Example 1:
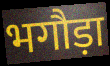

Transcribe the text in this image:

भगौड़ा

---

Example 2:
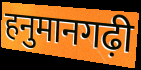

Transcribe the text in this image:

हनुमानगढ़ी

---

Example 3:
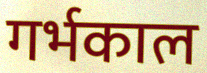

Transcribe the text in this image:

गर्भकाल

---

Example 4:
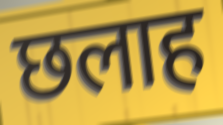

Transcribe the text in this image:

छलाह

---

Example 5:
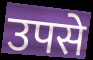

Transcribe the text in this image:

उपसे